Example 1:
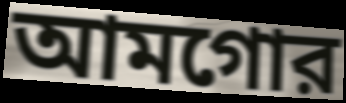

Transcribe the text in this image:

আমগোর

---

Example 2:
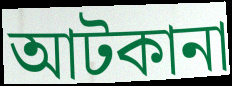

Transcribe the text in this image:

আটকানা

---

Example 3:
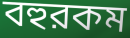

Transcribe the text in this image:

বহুরকম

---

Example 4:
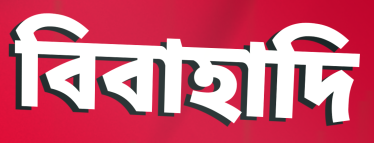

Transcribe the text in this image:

বিবাহাদি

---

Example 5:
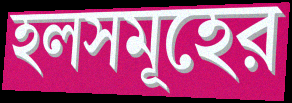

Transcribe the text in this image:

হলসমূহের